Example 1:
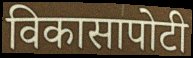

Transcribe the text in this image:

विकासापोटी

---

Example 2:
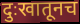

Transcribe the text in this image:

दुःखातूनच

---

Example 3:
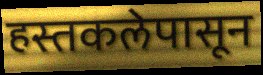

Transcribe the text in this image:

हस्तकलेपासून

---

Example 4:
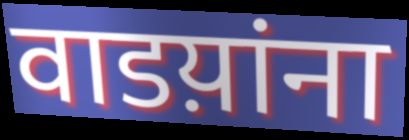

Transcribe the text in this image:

वाडय़ांना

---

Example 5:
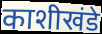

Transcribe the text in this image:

काशीखंडे